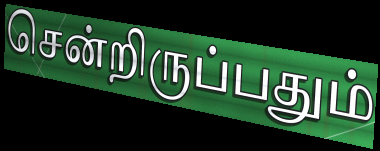
சென்றிருப்பதும்